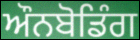
ਔਨਬੋਡਿੰਗ